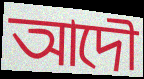
আদৌ